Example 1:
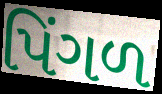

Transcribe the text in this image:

પિંગળ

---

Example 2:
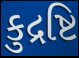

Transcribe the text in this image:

કુદ્રષ્ટિ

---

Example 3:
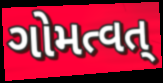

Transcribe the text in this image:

ગોમત્વત્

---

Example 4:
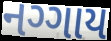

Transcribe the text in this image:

નગ્ગાય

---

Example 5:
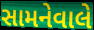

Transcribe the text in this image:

સામનેવાલે